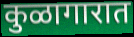
कुळागारात